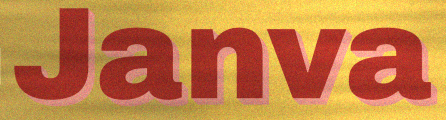
Janva